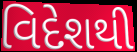
વિદેશથી